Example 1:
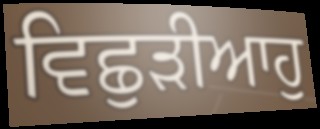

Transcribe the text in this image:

ਵਿਛੁੜੀਆਹੁ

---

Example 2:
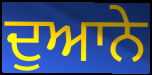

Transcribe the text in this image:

ਦੁਆਨੇ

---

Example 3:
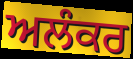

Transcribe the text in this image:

ਅਲੰਕਰ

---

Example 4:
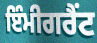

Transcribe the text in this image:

ਇੰਮੀਗਰੈਂਟ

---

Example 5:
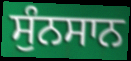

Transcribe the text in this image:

ਸੁੰਨਸਾਨ